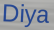
Diya